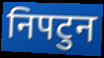
निपटुन